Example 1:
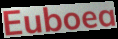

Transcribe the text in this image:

Euboea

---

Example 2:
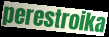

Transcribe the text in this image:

perestroika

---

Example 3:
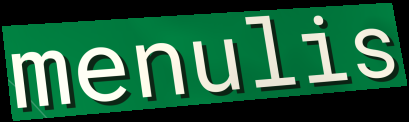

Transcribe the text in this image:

menulis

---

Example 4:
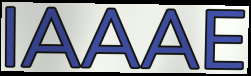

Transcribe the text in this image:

IAAAE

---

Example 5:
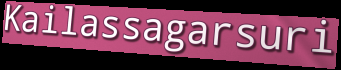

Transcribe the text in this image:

Kailassagarsuri